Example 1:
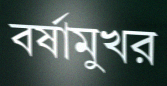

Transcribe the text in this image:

বর্ষামুখর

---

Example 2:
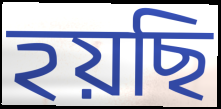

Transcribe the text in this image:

হয়ছি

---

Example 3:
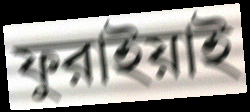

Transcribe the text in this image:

ফুরাইয়াই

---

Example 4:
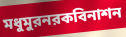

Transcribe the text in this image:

মধুমুরনরকবিনাশন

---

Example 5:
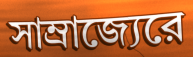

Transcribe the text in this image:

সাম্রাজ্যেরে